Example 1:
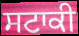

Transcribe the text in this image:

ਸਟਾਕੀ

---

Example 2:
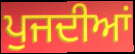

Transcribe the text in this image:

ਪੁਜਦੀਆਂ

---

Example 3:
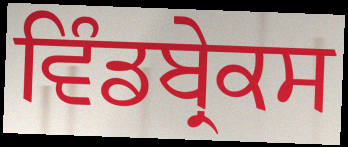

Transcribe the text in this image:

ਵਿੰਡਬ੍ਰੇਕਸ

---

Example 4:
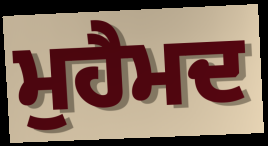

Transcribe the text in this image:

ਮੁਹੈਮਦ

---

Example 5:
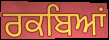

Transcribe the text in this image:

ਰਕਬਿਆਂ